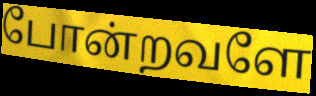
போன்றவளே